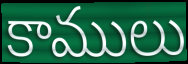
కాములు